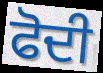
ਫੋਦੀ